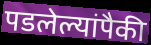
पडलेल्यांपैकी